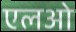
एलओ